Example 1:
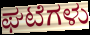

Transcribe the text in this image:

ಘಟೆಗಳು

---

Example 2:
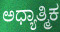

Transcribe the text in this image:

ಅಧ್ಯಾತ್ಮಿಕ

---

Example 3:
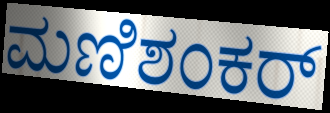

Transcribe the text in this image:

ಮಣಿಶಂಕರ್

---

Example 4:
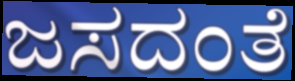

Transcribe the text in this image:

ಜಸದಂತೆ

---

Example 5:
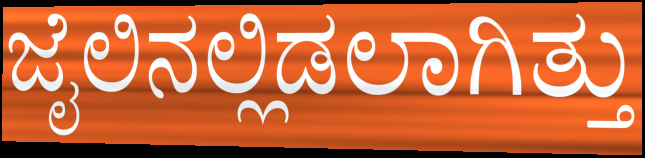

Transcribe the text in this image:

ಜೈಲಿನಲ್ಲಿಡಲಾಗಿತ್ತು